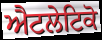
ਐਟਲੇਟਿਕੋ